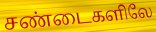
சண்டைகளிலே